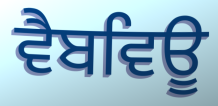
ਵੈਬਵਿਊ